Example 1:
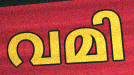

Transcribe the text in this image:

വമി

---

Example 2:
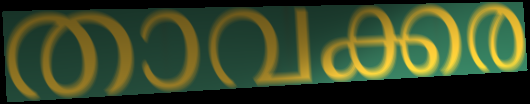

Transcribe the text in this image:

താവക്കര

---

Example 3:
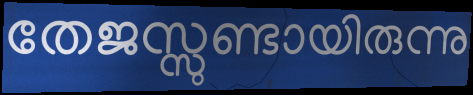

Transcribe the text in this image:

തേജസ്സുണ്ടായിരുന്നു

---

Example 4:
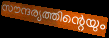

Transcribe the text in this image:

സൗന്ദര്യത്തിന്റെയും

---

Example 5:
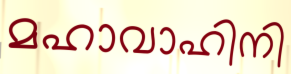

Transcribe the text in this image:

മഹാവാഹിനി